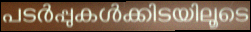
പടർപ്പുകൾക്കിടയിലൂടെ